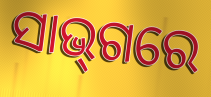
ସାଭ୍‌ଗରେ